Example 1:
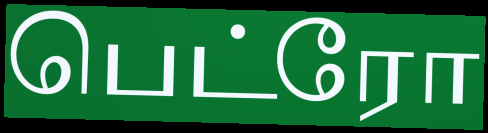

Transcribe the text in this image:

பெட்ரோ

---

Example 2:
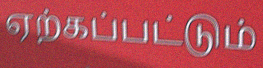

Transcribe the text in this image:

ஏற்கப்பட்டும்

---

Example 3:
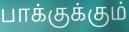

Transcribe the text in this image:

பாக்குக்கும்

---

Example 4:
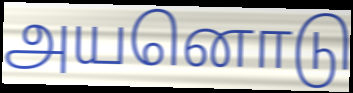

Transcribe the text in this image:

அயனொடு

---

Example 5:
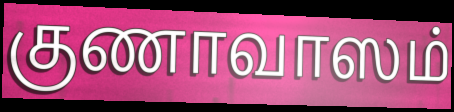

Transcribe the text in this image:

குணாவாஸம்